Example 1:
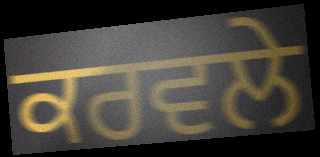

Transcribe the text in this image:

ਕਰਵਲੇ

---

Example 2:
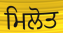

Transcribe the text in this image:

ਮਿਲੋਤ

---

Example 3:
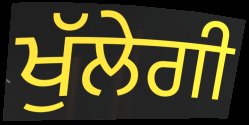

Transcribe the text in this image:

ਖੁੱਲੇਗੀ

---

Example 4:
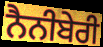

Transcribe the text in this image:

ਨੈਨੀਬੇਰੀ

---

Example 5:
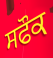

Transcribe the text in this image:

ਸਫੌਕ